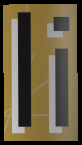
li